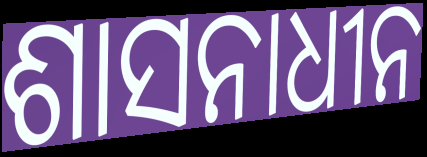
ଶାସନାଧୀନ